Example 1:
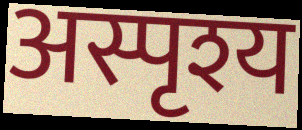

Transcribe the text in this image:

अस्पृश्य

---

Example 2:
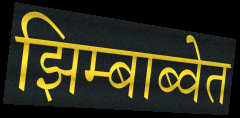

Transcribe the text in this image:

झिम्बाब्वेत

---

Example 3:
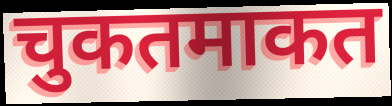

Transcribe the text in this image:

चुकतमाकत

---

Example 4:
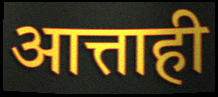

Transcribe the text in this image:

आत्ताही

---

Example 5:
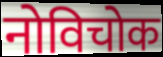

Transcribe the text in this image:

नोविचोक